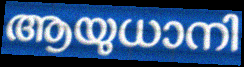
ആയുധാനി